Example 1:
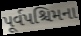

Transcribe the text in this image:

પૂર્વપશ્ચિમના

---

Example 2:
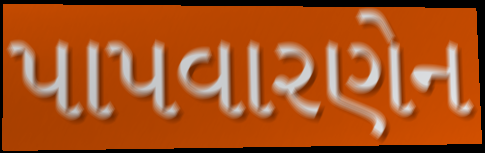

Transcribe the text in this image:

પાપવારણેન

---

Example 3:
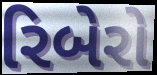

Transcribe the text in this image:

રિબેરો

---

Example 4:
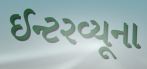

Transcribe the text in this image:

ઈન્ટરવ્યૂના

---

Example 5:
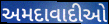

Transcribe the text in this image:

અમદાવાદીઓ